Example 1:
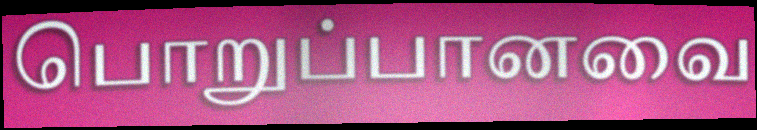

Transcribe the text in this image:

பொறுப்பானவை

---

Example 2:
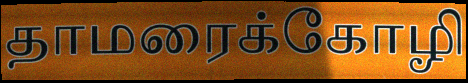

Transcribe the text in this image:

தாமரைக்கோழி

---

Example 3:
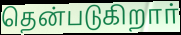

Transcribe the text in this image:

தென்படுகிறார்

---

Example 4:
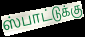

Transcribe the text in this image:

ஸ்பாட்டுக்கு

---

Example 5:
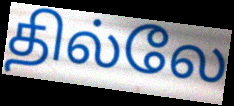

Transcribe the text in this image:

தில்லே